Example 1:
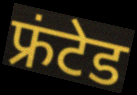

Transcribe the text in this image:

फ्रंटेड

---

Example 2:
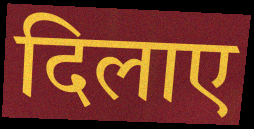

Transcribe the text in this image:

दिलाए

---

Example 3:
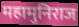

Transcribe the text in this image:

महामुनिराज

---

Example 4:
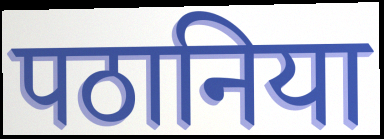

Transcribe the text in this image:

पठानिया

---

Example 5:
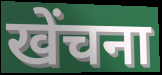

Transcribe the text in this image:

खेंचना